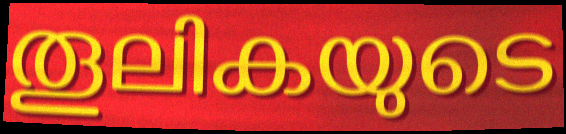
തൂലികയുടെ